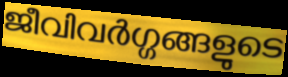
ജീവിവർഗ്ഗങ്ങളുടെ